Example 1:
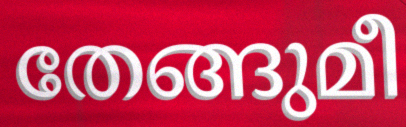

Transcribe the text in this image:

തേങ്ങുമീ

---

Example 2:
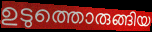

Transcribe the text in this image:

ഉടുത്തൊരുങ്ങിയ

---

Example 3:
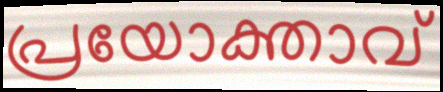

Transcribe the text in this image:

പ്രയോക്താവ്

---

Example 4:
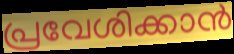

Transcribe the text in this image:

പ്രവേശിക്കാൻ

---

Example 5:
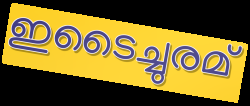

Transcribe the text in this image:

ഇടൈച്ചുരമ്